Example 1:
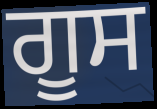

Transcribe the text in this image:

ਗੂਸ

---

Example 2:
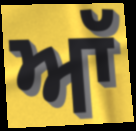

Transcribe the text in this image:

ਆੱ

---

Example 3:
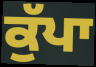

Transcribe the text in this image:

ਕੁੱਪਾ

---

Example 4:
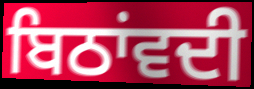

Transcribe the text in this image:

ਬਿਠਾਂਵਦੀ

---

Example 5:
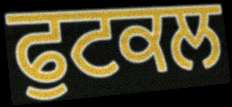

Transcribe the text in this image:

ਫੁਟਕਲ